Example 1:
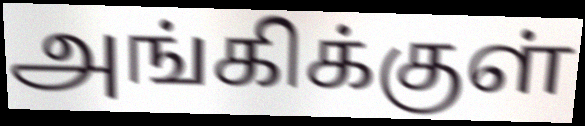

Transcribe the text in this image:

அங்கிக்குள்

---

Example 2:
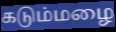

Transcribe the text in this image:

கடும்மழை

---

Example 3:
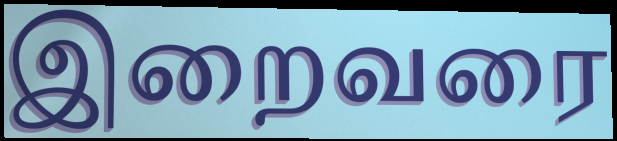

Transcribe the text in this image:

இறைவரை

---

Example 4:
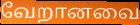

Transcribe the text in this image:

வேறானவை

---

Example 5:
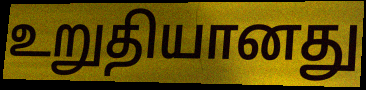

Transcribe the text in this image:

உறுதியானது